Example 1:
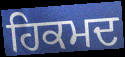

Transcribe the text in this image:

ਹਿਕਮਦ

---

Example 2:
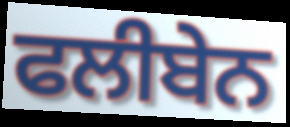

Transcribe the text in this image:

ਫਲੀਬੇਨ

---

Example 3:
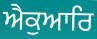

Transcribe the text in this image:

ਐਕੁਆਰਿ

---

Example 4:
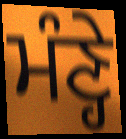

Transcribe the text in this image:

ਮੰਣ੍ਹੇ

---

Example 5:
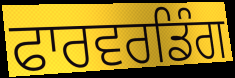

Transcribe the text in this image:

ਫਾਰਵਰਡਿੰਗ